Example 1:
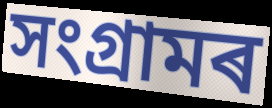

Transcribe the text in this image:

সংগ্ৰামৰ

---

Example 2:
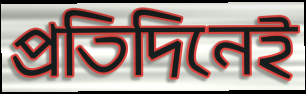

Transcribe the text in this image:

প্ৰতিদিনেই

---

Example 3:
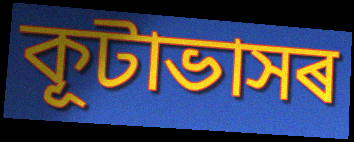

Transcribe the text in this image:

কূটাভাসৰ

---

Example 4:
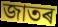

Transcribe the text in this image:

জাতৰ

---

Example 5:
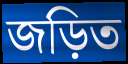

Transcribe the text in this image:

জড়িত